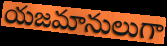
యజమానులుగా